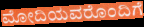
ಮೋದಿಯವರೊಂದಿಗೆ